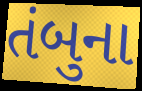
તંબુના